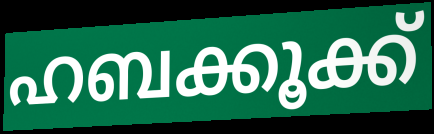
ഹബക്കൂക്ക്